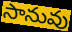
సానువు